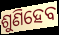
ଶୁଣିହେବ